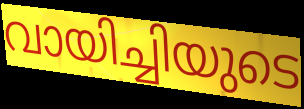
വായിച്ചിയുടെ